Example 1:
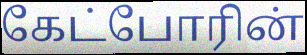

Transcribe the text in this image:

கேட்போரின்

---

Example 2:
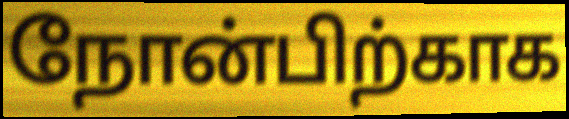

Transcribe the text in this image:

நோன்பிற்காக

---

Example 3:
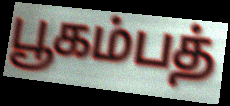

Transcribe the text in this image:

பூகம்பத்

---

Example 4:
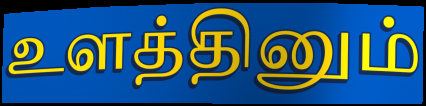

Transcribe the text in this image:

உளத்தினும்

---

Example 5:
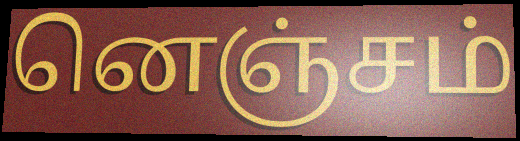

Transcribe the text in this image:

னெஞ்சம்